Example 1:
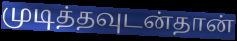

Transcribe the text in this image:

முடித்தவுடன்தான்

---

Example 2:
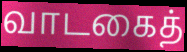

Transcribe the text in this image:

வாடகைத்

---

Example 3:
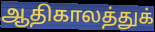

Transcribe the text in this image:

ஆதிகாலத்துக்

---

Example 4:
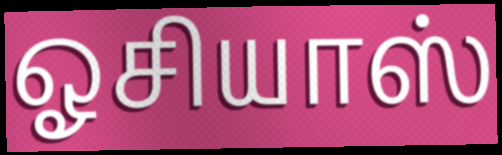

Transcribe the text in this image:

ஓசியாஸ்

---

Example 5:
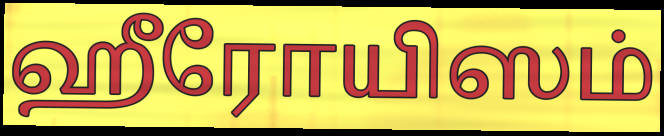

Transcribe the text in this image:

ஹீரோயிஸம்